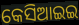
କେସିଆଇଇ